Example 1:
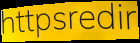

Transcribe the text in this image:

httpsredir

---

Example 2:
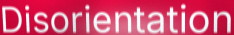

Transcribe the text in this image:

Disorientation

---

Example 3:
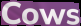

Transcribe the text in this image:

Cows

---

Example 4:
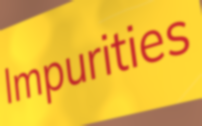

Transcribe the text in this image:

Impurities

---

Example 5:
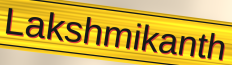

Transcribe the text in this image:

Lakshmikanth